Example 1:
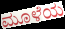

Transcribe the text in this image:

ಮೂಳೆಯ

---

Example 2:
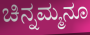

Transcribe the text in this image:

ಚಿನ್ನಮ್ಮನೂ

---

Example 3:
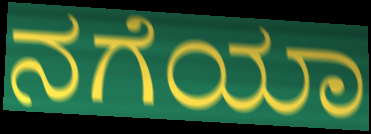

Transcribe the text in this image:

ನಗೆಯಾ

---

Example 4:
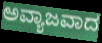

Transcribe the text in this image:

ಅವ್ಯಾಜವಾದ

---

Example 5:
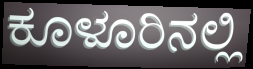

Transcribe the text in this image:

ಕೂಳೂರಿನಲ್ಲಿ